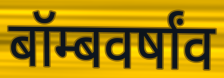
बॉम्बवर्षांव